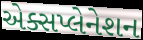
એક્સપ્લેનેશન